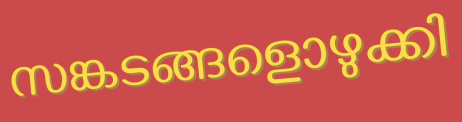
സങ്കടങ്ങളൊഴുക്കി